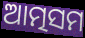
ଆତ୍ମସମ